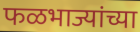
फळभाज्यांच्या